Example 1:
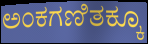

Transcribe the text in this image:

ಅಂಕಗಣಿತಕ್ಕೂ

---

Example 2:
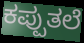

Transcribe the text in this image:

ಕಪ್ಪುತಲೆ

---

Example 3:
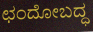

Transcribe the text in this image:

ಛಂದೋಬದ್ಧ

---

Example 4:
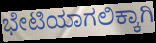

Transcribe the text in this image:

ಭೇಟಿಯಾಗಲಿಕ್ಕಾಗಿ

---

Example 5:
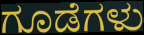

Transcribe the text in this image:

ಗೂಡೆಗಳು